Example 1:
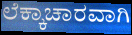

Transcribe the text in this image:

ಲೆಕ್ಕಾಚಾರವಾಗಿ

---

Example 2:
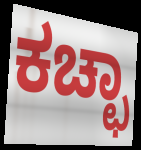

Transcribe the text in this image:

ಕಚ್ಛಾ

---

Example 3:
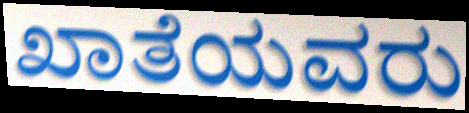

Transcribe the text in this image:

ಖಾತೆಯವರು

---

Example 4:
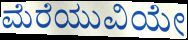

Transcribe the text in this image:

ಮೆರೆಯುವಿಯೇ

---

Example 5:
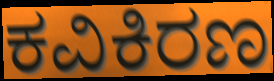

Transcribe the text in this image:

ಕವಿಕಿರಣ